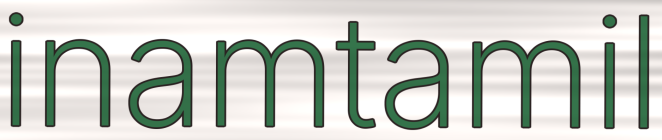
inamtamil